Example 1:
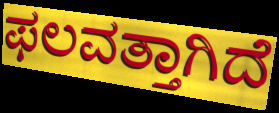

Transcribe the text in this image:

ಫಲವತ್ತಾಗಿದೆ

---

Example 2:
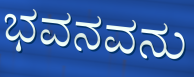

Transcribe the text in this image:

ಭವನವನು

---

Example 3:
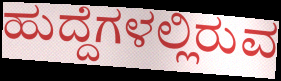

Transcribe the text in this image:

ಹುದ್ದೆಗಳಲ್ಲಿರುವ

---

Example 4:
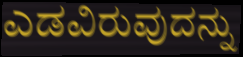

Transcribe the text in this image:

ಎಡವಿರುವುದನ್ನು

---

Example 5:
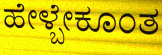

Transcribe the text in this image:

ಹೇಳ್ಬೇಕೂಂತ